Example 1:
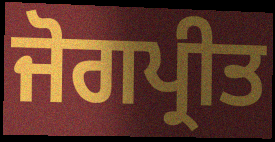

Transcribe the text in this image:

ਜੋਗਪ੍ਰੀਤ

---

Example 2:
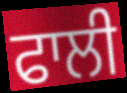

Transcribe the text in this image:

ਫਾਲੀ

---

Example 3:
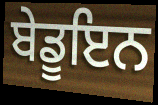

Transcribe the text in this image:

ਬੇਡੂਇਨ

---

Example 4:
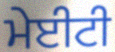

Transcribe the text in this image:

ਮੇਈਟੀ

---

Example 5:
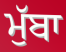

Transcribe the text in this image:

ਮੁੱਬਾ